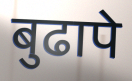
बुढापे